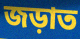
জড়াত